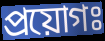
প্রয়োগঃ